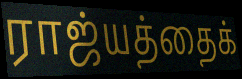
ராஜ்யத்தைக்